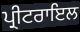
ਪ੍ਰੀਟਰਾਇਲ